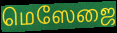
மெஸேஜை